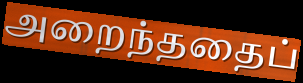
அறைந்ததைப்